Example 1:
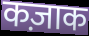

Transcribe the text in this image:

कज़ाक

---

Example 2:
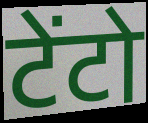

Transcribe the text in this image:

टेंटो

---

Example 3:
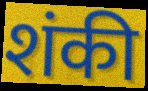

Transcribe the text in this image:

शंकी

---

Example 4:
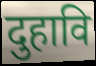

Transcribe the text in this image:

दुहावि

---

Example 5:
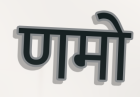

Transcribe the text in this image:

णमो